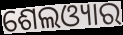
ଶେଲଓ୍ୟାର